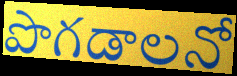
పొగడాలనో